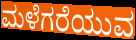
ಮಳೆಗರೆಯುವ